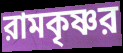
রামকৃষ্ণর